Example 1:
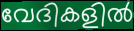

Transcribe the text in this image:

വേദികളിൽ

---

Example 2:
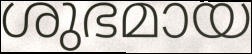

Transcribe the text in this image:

ശുഭമായ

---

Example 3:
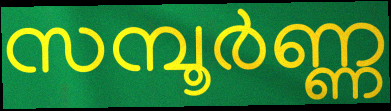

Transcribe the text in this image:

സമ്പൂർണ്ണ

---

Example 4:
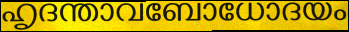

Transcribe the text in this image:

ഹൃദന്താവബോധോദയം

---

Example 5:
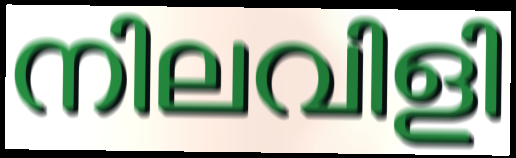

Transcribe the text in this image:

നിലവിളി